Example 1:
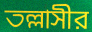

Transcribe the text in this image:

তল্লাসীর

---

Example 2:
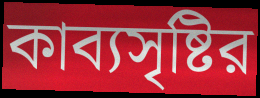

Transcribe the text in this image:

কাব্যসৃষ্টির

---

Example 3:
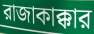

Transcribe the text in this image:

রাজাকাক্কার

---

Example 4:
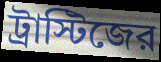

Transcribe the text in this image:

ট্রাস্টিজের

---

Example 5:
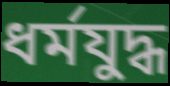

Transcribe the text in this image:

ধর্মযুদ্ধ